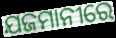
ଯଜମାନୀରେ